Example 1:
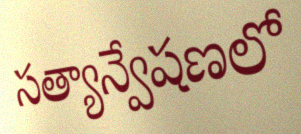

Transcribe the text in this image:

సత్యాన్వేషణలో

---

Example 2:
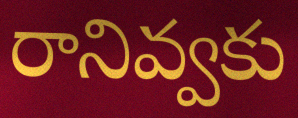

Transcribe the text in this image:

రానివ్వకు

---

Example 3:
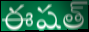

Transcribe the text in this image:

ఈషత్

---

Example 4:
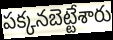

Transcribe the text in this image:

పక్కనబెట్టేశారు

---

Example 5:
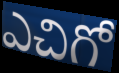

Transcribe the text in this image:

ఎచిగో